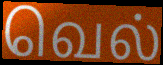
வெல்